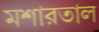
মশারতাল